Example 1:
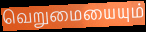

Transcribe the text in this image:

வெறுமையையும்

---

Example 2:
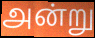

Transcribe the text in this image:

அன்று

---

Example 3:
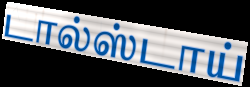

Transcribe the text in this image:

டால்ஸ்டாய்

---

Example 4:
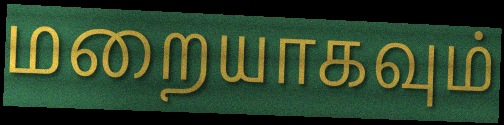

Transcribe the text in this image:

மறையாகவும்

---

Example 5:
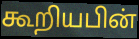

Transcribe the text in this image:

கூறியபின்